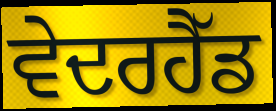
ਵੇਦਰਹੈੱਡ